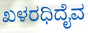
ಖಳರಧಿದೈವ